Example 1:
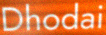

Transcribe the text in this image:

Dhodai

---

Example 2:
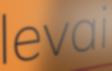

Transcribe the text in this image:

levai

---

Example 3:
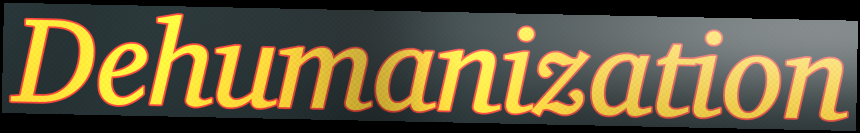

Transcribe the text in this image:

Dehumanization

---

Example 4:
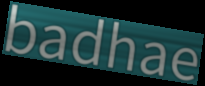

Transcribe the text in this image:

badhae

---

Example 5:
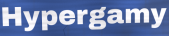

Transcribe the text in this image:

Hypergamy